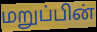
மறுப்பின்